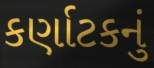
કર્ણાટકનું